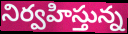
నిర్వహిస్తున్న